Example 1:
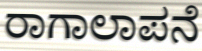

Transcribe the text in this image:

ರಾಗಾಲಾಪನೆ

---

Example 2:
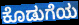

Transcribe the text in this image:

ಕೊಡುಗೆಯ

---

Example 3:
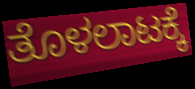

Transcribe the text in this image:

ತೊಳಲಾಟಕ್ಕೆ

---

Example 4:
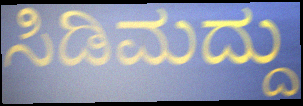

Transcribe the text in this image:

ಸಿಡಿಮದ್ದು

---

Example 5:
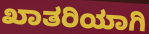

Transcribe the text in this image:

ಖಾತರಿಯಾಗಿ